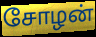
சோழன்